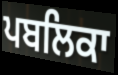
ਪਬਲਿਕਾ